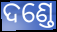
ଦଣ୍ଡେ